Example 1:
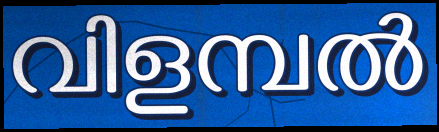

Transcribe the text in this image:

വിളമ്പൽ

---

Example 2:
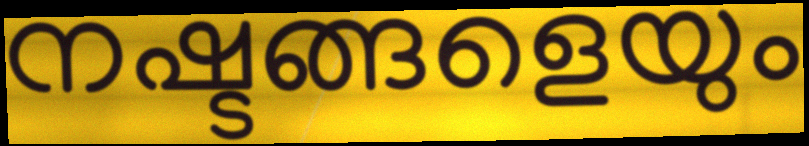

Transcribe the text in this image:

നഷ്ടങ്ങളെയും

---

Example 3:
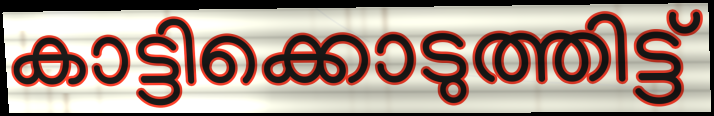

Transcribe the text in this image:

കാട്ടിക്കൊടുത്തിട്ട്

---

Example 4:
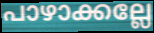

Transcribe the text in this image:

പാഴാക്കല്ലേ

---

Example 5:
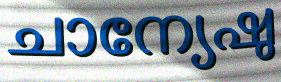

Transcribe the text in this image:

ചാന്യേഷു